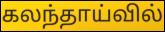
கலந்தாய்வில்